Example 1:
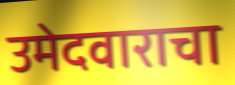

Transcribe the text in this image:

उमेदवाराचा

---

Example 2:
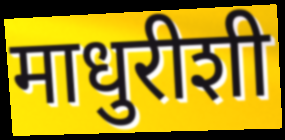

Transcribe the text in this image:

माधुरीशी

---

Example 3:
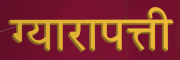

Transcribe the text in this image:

ग्यारापत्ती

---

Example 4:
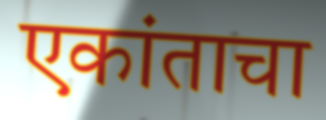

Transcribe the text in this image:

एकांताचा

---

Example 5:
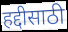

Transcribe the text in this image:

हद्दीसाठी